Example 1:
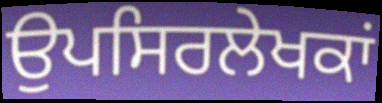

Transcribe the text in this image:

ਉਪਸਿਰਲੇਖਕਾਂ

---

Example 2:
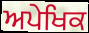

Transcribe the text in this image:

ਅਪੇਖਿਕ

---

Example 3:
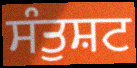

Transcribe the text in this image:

ਸੰਤੁਸ਼ਟ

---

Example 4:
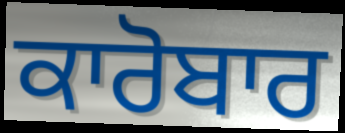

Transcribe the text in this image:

ਕਾਰੋਬਾਰ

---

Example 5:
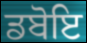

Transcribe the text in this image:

ਡਬੋਇ